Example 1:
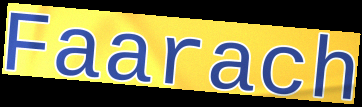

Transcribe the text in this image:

Faarach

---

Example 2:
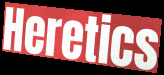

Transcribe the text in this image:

Heretics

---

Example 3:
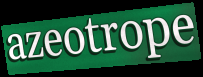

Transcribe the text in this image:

azeotrope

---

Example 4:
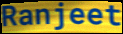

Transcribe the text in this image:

Ranjeet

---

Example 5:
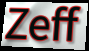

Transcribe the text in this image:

Zeff